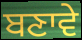
ਬਣਾਵੇ